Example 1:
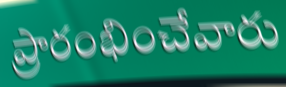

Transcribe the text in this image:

ప్రారంభించేవారు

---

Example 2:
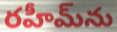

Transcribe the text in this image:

రహీమ్‌ను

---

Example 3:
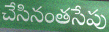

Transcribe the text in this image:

చేసినంతసేపు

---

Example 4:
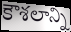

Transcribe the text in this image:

కౌశలాన్ని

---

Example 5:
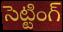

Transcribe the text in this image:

సెట్టింగ్